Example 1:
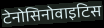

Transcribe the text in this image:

टेनोसिनोवाइटिस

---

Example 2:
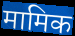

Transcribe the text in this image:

मामिक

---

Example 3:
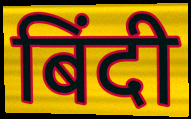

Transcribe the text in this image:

बिंदी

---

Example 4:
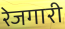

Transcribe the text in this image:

रेजगारी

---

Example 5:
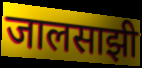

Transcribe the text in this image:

जालसाझी